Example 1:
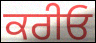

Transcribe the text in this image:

ਕਰੀਓ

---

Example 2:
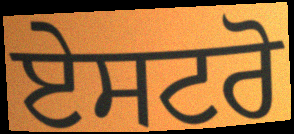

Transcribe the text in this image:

ਏਸਟਰੋ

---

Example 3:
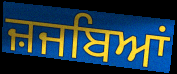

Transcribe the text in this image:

ਜ਼ਜਬਿਆਂ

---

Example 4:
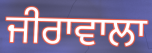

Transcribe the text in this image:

ਜੀਰਾਵਾਲਾ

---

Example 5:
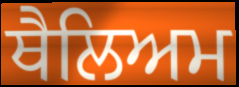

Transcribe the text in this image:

ਥੈਲਿਅਮ